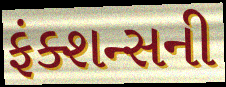
ફંક્શન્સની